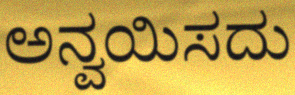
ಅನ್ವಯಿಸದು